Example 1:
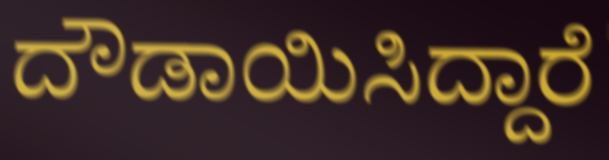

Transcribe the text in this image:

ದೌಡಾಯಿಸಿದ್ದಾರೆ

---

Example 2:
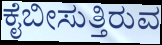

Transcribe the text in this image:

ಕೈಬೀಸುತ್ತಿರುವ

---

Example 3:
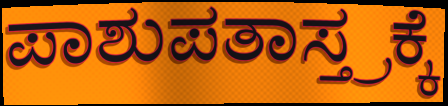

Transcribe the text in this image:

ಪಾಶುಪತಾಸ್ತ್ರಕ್ಕೆ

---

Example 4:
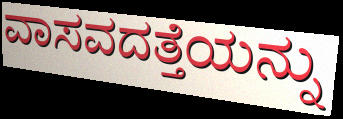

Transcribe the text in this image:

ವಾಸವದತ್ತೆಯನ್ನು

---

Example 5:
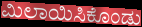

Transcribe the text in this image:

ಮಿಲಾಯಿಸಿಕೊಂಡು